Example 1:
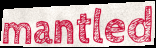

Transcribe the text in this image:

mantled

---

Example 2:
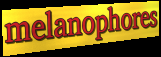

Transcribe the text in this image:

melanophores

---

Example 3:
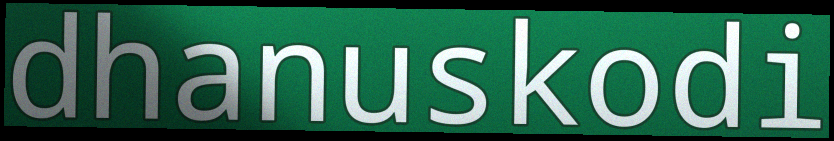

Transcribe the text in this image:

dhanuskodi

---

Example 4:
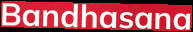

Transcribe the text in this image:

Bandhasana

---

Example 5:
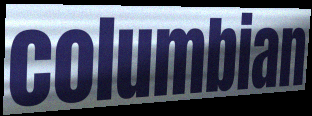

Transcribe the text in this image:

columbian